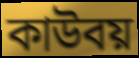
কাউবয়